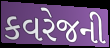
કવરેજની